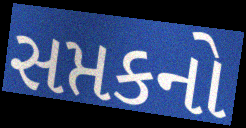
સપ્તકનો